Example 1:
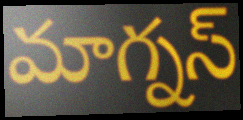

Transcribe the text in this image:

మాగ్నస్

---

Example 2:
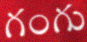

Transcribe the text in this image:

గంగు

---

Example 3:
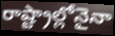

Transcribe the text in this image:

రాష్ట్రాల్లోనైనా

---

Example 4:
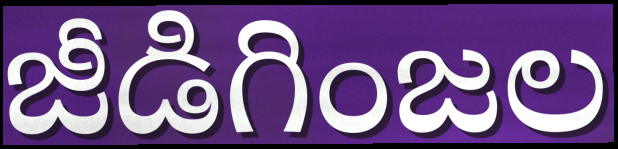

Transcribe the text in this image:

జీడిగింజల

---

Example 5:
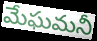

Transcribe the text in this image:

మేఘమనీ